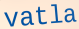
vatla